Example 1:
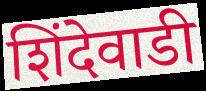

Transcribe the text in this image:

शिंदेवाडी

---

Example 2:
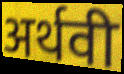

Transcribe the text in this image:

अर्थवी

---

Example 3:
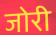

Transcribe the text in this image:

जोरी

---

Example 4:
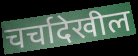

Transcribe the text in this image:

चर्चादेखील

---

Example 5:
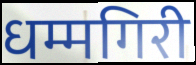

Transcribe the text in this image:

धम्मगिरी